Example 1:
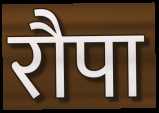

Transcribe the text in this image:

रौपा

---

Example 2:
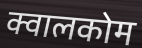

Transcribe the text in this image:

क्वालकोम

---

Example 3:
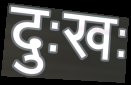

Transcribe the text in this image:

दुःखः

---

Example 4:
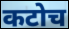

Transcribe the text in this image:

कटोच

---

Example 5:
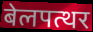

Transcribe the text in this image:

बेलपत्थर